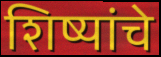
शिष्यांचे